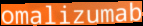
omalizumab